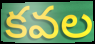
కవల